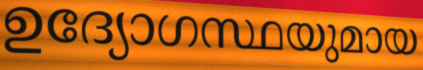
ഉദ്യോഗസ്ഥയുമായ